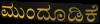
ಮುಂದೂಡಿಕೆ